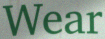
Wear